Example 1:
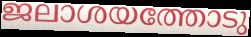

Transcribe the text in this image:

ജലാശയത്തോടു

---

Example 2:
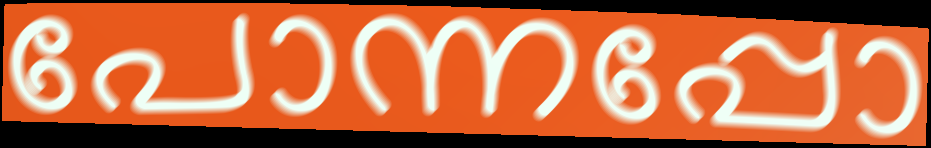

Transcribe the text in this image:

പോന്നപ്പോ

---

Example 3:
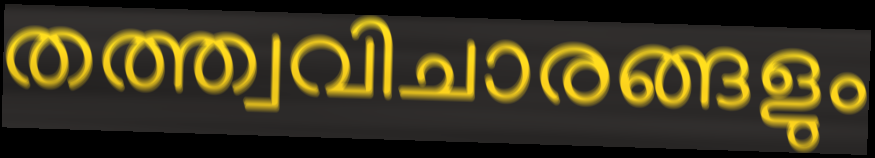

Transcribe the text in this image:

തത്ത്വവിചാരങ്ങളും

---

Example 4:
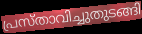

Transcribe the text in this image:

പ്രസ്താവിച്ചുതുടങ്ങി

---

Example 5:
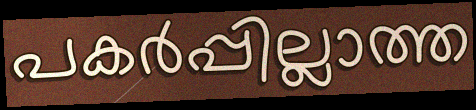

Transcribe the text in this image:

പകർപ്പില്ലാത്ത